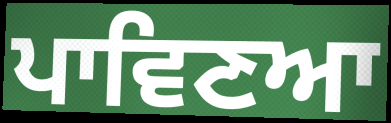
ਪਾਵਿਣਆ